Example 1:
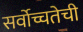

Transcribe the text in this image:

सर्वोच्चतेची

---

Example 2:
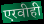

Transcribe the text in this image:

एरवीही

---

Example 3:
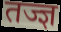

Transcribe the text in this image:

तज्‍ज्ञ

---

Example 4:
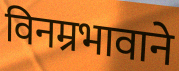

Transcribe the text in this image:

विनम्रभावाने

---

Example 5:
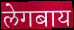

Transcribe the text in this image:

लेगबाय